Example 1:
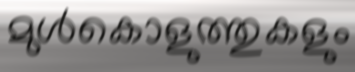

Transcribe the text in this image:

മുൾകൊളുത്തുകളും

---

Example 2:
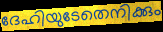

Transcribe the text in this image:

ദേഹിയുടേതെനിക്കും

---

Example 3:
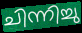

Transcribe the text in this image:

ചിന്നിച്ചു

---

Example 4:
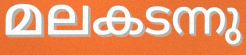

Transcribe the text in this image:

മലകടന്നു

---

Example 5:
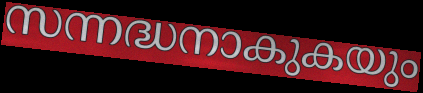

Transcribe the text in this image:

സന്നദ്ധനാകുകയും